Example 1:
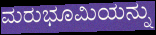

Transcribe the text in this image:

ಮರುಭೂಮಿಯನ್ನು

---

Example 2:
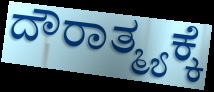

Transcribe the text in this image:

ದೌರಾತ್ಮ್ಯಕ್ಕೆ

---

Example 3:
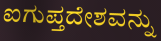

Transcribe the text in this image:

ಐಗುಪ್ತದೇಶವನ್ನು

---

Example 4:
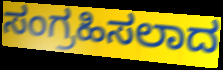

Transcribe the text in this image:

ಸಂಗ್ರಹಿಸಲಾದ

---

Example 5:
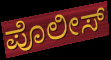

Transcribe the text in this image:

ಪೊಲೀಸ್